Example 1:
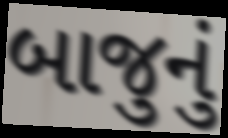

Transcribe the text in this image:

બાજુનું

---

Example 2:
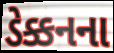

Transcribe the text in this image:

ડેક્કનના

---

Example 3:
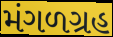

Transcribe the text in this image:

મંગળગ્રહ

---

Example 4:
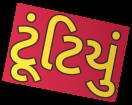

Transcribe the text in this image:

ટૂંટિયું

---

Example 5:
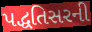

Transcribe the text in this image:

પદ્ધતિસરની